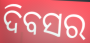
ଦିବସର